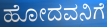
ಹೋದವನಿಗೆ